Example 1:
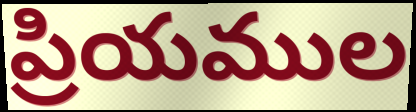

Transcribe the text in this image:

ప్రియముల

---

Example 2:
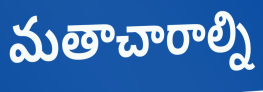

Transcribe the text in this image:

మతాచారాల్ని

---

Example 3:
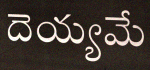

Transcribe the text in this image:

దెయ్యమే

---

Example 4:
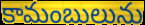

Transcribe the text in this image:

కామంబులును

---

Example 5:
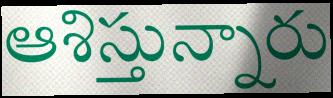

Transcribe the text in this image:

ఆశిస్తున్నారు